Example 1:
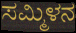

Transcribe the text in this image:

ಸಮ್ಮಿಳನ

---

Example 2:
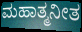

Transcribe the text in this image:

ಮಹಾತ್ಮನೀತ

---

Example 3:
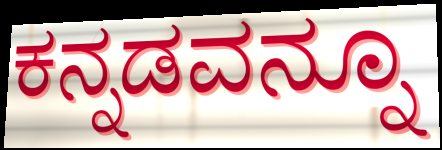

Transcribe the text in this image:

ಕನ್ನಡವನ್ನೂ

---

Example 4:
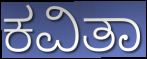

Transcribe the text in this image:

ಕವಿತಾ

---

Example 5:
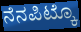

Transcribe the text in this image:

ನೆನಪಿಟ್ಕೊ